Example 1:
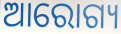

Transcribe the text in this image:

ଆରୋଗ୍ଯ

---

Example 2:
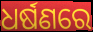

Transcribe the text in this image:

ଧର୍ଷଣରେ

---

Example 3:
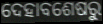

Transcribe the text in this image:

ଦେହାବଶେଷରୁ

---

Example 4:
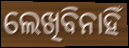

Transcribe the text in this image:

ଲେଖିବିନାହିଁ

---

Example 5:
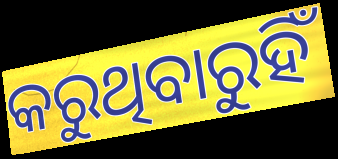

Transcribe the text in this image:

କରୁଥିବାରୁହିଁ